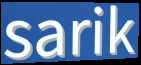
sarik